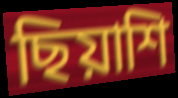
ছিয়াশি